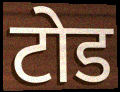
टोड